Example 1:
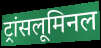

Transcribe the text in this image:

ट्रांसलूमिनल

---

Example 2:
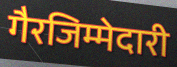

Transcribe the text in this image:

गैरजिम्मेदारी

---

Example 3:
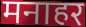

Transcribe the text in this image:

मनाहर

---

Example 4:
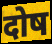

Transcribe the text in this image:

दोष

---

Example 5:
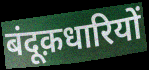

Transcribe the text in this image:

बंदूक़धारियों